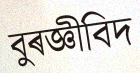
বুৰজ্ঞীবিদ